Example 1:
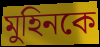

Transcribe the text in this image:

মুহিনকে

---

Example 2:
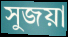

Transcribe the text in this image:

সুজয়া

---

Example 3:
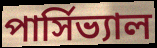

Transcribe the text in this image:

পার্সিভ্যাল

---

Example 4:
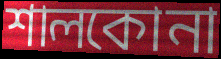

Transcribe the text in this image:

শালকোনা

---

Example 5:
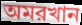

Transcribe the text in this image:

অমরখান